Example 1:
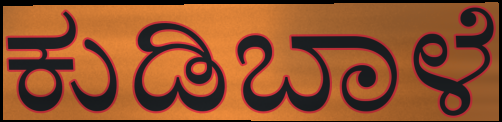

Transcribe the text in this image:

ಕುಡಿಬಾಳೆ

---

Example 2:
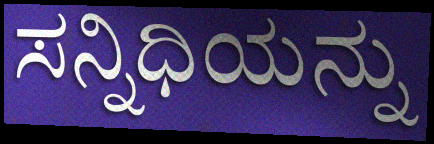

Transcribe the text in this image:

ಸನ್ನಿಧಿಯನ್ನು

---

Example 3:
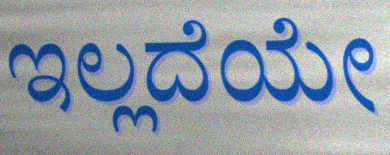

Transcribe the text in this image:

ಇಲ್ಲದೆಯೇ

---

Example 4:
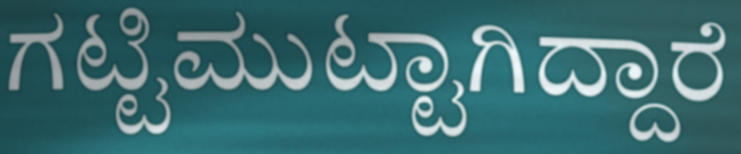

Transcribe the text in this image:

ಗಟ್ಟಿಮುಟ್ಟಾಗಿದ್ದಾರೆ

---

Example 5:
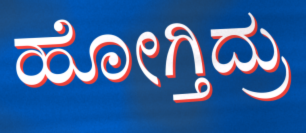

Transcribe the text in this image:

ಹೋಗ್ತಿದ್ರು